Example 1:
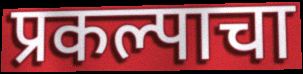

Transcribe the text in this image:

प्रकल्पाचा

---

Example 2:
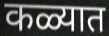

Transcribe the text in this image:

कळ्यात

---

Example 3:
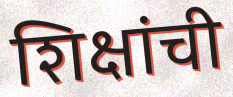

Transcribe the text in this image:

शिक्षांची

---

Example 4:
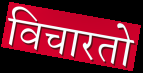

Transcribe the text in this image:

विचारतो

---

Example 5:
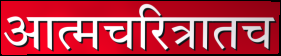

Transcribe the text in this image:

आत्मचरित्रातच